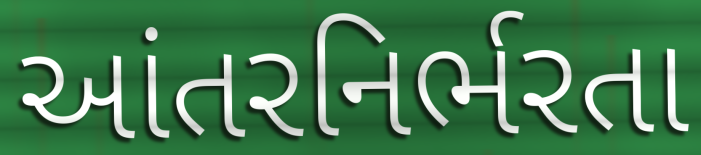
આંતરનિર્ભરતા